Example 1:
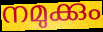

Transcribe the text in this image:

നമുക്കും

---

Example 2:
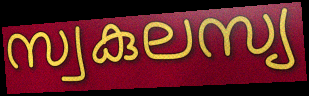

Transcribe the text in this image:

സ്വകുലസ്യ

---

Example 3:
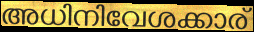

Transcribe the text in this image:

അധിനിവേശക്കാര്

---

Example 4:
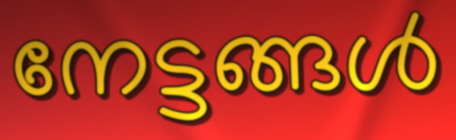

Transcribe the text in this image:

നേട്ടങ്ങൾ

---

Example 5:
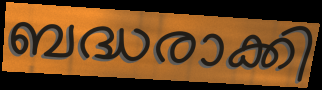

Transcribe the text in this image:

ബദ്ധരാക്കി